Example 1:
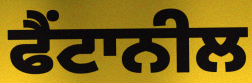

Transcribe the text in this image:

ਫੈਂਟਾਨੀਲ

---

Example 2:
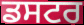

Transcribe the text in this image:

ਡਸਟਰ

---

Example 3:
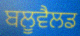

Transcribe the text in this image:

ਬਲੂਵੈਲਡ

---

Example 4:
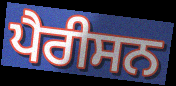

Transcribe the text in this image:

ਪੈਰੀਸਨ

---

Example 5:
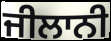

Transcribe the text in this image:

ਜੀਲਾਨੀ